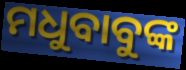
ମଧୁବାବୁଙ୍କ